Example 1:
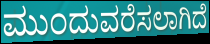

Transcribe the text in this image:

ಮುಂದುವರೆಸಲಾಗಿದೆ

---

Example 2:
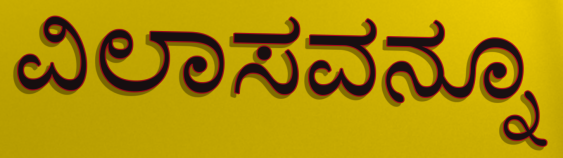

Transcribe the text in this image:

ವಿಲಾಸವನ್ನೂ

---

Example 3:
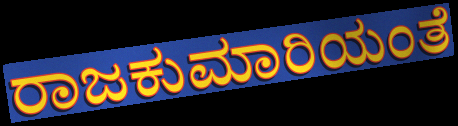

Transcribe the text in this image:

ರಾಜಕುಮಾರಿಯಂತೆ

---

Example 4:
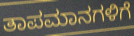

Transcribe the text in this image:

ತಾಪಮಾನಗಳಿಗೆ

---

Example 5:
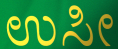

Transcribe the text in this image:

ಉಸೀ